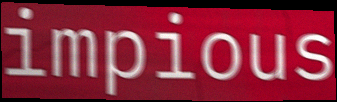
impious